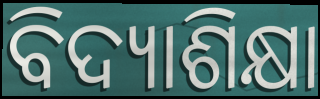
ବିଦ୍ୟାଶିକ୍ଷା